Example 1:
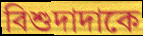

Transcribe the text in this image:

বিশুদাদাকে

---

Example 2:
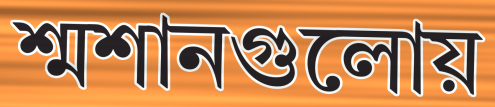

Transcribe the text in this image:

শ্মশানগুলোয়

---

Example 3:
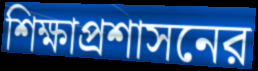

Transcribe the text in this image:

শিক্ষাপ্রশাসনের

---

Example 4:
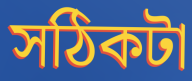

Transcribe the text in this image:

সঠিকটা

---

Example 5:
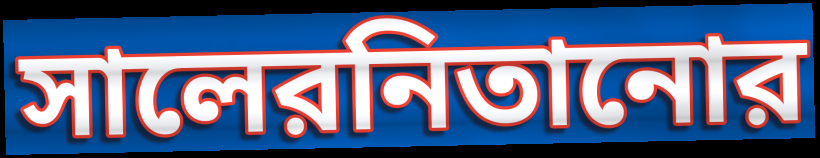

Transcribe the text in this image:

সালেরনিতানোর